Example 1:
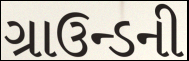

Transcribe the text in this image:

ગ્રાઉન્ડની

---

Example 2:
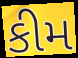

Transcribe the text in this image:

કીમ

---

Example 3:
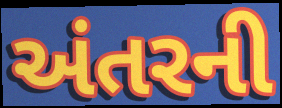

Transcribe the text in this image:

અંતરની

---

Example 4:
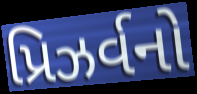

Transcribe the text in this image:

પ્રિઝર્વનો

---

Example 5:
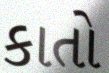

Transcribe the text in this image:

કાતો